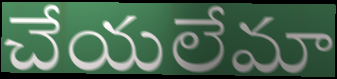
చేయలేమా